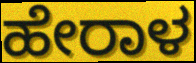
ಹೇರಾಳ